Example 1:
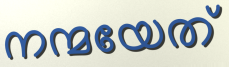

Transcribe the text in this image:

നന്മയേത്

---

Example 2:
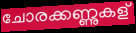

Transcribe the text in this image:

ചോരക്കണ്ണുകള്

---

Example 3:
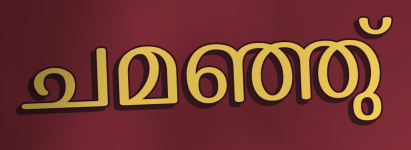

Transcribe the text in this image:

ചമഞ്ഞു്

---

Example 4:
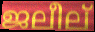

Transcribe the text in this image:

ജലീല്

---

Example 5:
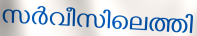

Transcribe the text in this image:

സർവീസിലെത്തി